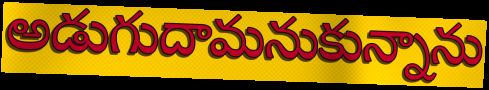
అడుగుదామనుకున్నాను